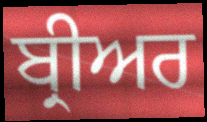
ਬ੍ਰੀਅਰ